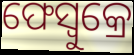
ଫେସ୍ବୁକ୍ରେ